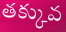
తక్కువ